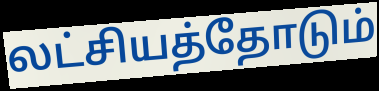
லட்சியத்தோடும்